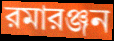
রমারঞ্জন